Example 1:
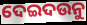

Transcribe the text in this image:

ଦେଇଦଉନୁ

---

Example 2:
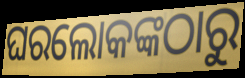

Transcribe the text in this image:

ଘରଲୋକଙ୍କଠାରୁ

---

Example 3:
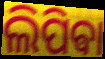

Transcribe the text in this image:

ଲିପିଵା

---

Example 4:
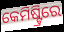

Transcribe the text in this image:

କେମିଷ୍ଟ୍ରିରେ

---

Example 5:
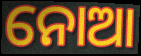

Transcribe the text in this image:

ନୋଆ